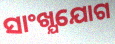
ସାଂଖ୍ଯଯୋଗ